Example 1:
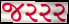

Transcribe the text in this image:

જરરર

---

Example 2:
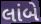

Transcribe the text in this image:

લાંબે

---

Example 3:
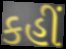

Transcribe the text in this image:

કહીં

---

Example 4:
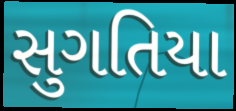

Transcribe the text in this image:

સુગતિયા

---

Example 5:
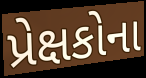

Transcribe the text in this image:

પ્રેક્ષકોના